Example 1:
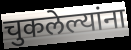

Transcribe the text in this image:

चुकलेल्यांना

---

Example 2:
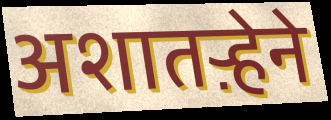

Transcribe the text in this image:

अशातऱ्‍हेने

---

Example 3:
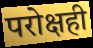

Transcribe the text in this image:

परोक्षही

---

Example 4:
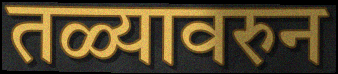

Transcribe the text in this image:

तळ्यावरुन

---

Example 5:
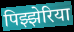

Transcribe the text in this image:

पिझ्झेरिया